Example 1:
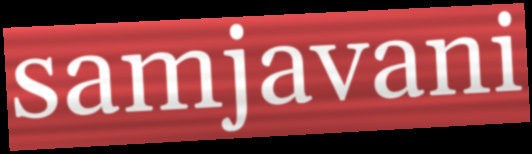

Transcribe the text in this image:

samjavani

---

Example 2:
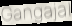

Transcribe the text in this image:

Gangajal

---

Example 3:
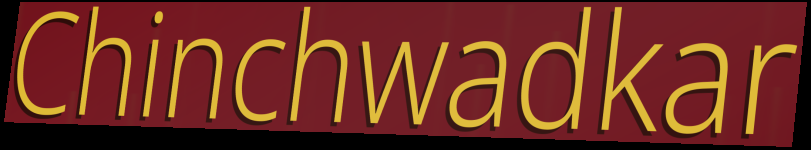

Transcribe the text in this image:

Chinchwadkar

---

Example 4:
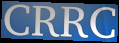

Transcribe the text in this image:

CRRC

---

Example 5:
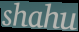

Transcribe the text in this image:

shahu